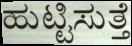
ಹುಟ್ಟಿಸುತ್ತೆ